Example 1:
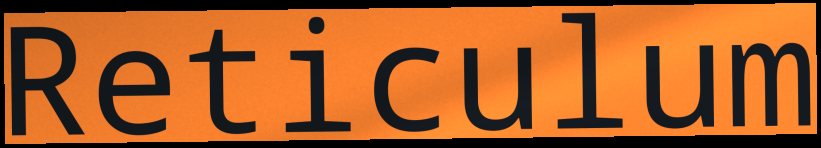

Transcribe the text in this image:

Reticulum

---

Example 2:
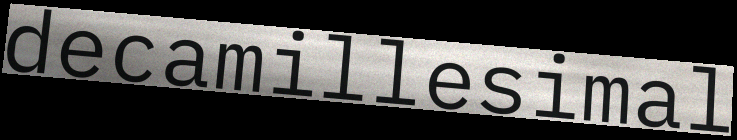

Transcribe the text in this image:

decamillesimal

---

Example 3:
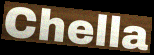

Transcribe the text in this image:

Chella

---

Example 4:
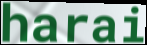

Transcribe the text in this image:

harai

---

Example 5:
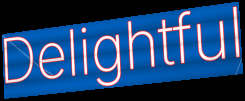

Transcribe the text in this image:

Delightful